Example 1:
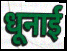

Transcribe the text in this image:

धूनाई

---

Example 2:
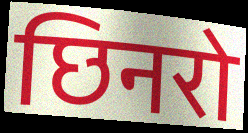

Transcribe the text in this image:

छिनरो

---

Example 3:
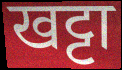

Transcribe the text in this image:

खट्टा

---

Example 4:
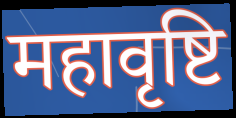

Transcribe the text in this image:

महावृष्टि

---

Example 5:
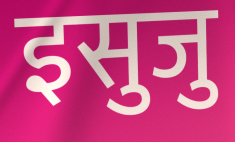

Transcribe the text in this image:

इसुजु